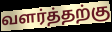
வளர்த்தற்கு